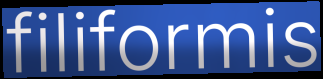
filiformis